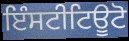
ਇੰਸਟੀਟਿਊਟੋ